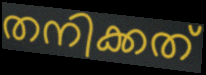
തനിക്കത്